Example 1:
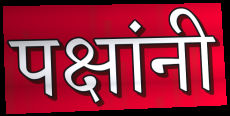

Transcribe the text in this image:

पक्षांनी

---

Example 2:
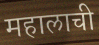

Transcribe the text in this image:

महालाची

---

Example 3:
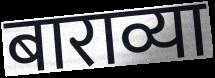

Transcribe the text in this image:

बाराव्या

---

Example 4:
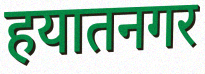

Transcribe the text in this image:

हयातनगर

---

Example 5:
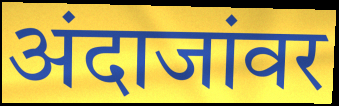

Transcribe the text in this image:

अंदाजांवर